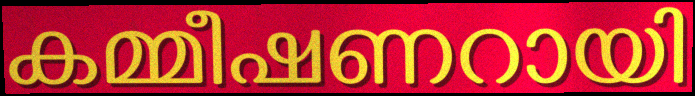
കമ്മീഷണറായി